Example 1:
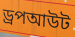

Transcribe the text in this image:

ড্রপআউট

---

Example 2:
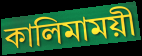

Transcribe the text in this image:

কালিমাময়ী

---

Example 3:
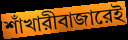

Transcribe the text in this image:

শাঁখারীবাজারেই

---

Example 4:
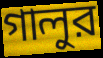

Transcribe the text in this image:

গালুর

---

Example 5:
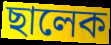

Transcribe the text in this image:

ছালেক